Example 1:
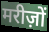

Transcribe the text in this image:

मरीज़ों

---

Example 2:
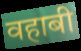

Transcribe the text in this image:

वहाबी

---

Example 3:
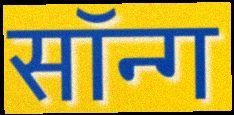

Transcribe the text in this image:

सॉन्ग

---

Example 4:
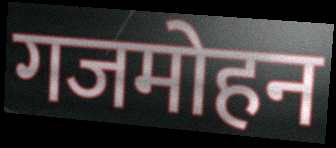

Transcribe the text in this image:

गजमोहन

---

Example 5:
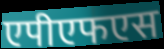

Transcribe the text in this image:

एपीएफएस